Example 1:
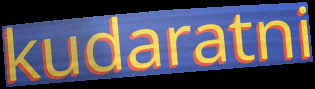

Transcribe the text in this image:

kudaratni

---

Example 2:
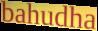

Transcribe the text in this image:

bahudha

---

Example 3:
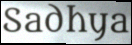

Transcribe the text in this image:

Sadhya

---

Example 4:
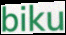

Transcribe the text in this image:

biku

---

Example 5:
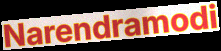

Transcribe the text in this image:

Narendramodi